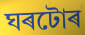
ঘৰটোৰ